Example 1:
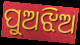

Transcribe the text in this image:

ପୁଅଝିଅ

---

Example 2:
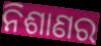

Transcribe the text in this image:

ନିଶାଣର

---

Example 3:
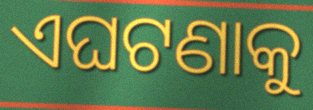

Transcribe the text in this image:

ଏଘଟଣାକୁ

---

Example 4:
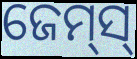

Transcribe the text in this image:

ଜେମ୍‌ସ୍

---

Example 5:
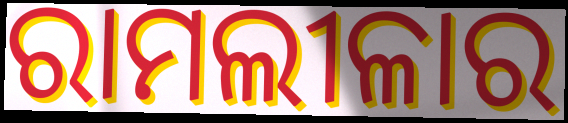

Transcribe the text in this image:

ରାମଲୀଳାର